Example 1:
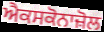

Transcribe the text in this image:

ਐਕਸਕੋਨਾਜ਼ੋਲ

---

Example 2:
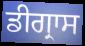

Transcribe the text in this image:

ਡੀਗ੍ਰਾਸ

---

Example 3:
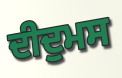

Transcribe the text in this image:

ਦੀਦੁਮਸ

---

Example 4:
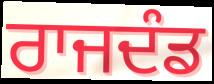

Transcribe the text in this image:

ਰਾਜਦੰਡ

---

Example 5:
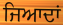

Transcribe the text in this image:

ਜਿਆਦਾਂ